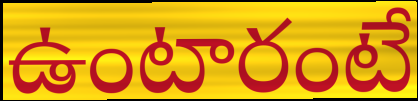
ఉంటారంటే